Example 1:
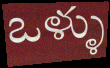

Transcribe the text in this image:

ఒళ్ళు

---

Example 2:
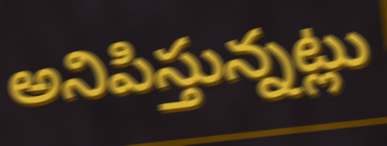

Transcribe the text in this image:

అనిపిస్తున్నట్లు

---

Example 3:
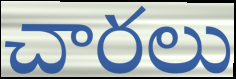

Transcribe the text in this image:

చారలు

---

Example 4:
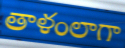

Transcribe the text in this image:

తాళంలాగా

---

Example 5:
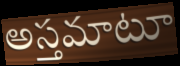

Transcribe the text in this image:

అస్తమాటూ